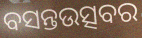
ବସନ୍ତଉତ୍ସବର